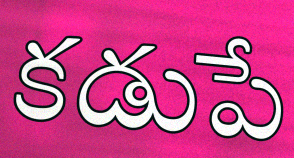
కడుపే